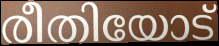
രീതിയോട്